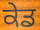
ਕੇਡ